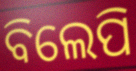
ବିଲେପି